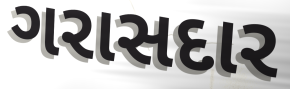
ગરાસદાર